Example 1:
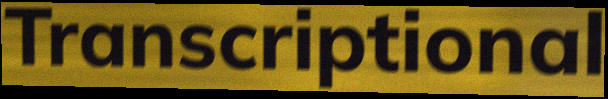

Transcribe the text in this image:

Transcriptional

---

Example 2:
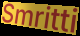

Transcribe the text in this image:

Smritti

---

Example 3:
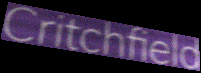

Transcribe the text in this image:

Critchfield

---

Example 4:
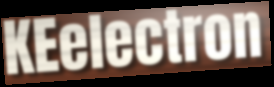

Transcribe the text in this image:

KEelectron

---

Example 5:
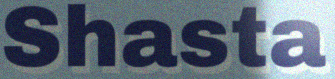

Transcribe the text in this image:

Shasta